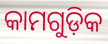
କାମଗୁଡ଼ିକ